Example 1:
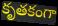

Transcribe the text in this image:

కృతకంగా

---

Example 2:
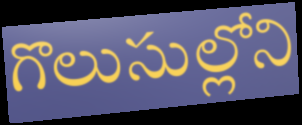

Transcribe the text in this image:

గొలుసుల్లోని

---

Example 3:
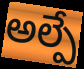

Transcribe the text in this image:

అల్పే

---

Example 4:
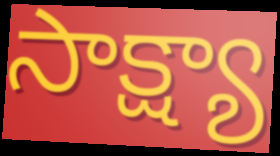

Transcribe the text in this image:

సాక్ష్యా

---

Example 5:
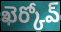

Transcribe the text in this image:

ఖెర్కోవ్